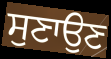
ਸੁਣਾਉਣ